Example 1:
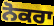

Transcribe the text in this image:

ਨੋਕਰਾ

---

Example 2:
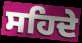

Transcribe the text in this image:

ਸਹਿਦੇ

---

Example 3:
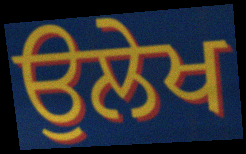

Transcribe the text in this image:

ਉਲੇਖ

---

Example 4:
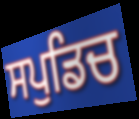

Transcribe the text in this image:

ਸਪੁਡਿਚ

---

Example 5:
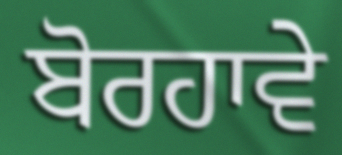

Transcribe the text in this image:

ਬੋਰਹਾਵੇ